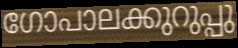
ഗോപാലക്കുറുപ്പു